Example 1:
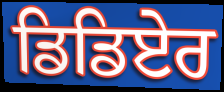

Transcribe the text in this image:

ਡਿਡਿਏਰ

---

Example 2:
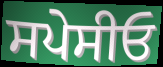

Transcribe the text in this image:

ਸਪੇਸੀਓ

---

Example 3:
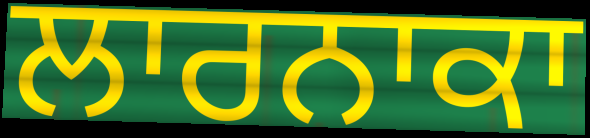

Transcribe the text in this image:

ਲਾਰਨਾਕਾ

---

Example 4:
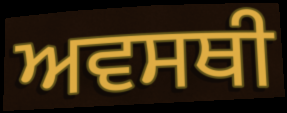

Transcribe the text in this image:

ਅਵਸਥੀ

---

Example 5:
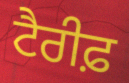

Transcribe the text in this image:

ਟੈਰੀਫ਼